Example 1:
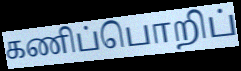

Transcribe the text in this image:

கணிப்பொறிப்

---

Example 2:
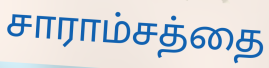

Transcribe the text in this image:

சாராம்சத்தை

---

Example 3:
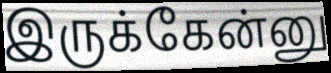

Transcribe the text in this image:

இருக்கேன்னு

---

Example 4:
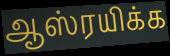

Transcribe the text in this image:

ஆஸ்ரயிக்க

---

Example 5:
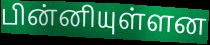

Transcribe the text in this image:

பின்னியுள்ளன